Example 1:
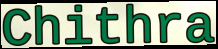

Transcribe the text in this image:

Chithra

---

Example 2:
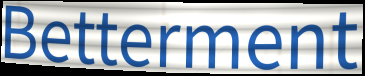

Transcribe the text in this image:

Betterment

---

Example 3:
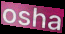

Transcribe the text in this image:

osha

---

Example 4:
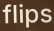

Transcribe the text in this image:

flips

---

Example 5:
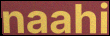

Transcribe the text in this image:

naahi